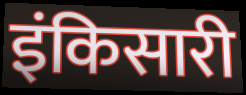
इंकिसारी